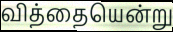
வித்தையென்று